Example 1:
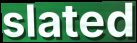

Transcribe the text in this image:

slated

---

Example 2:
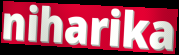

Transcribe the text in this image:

niharika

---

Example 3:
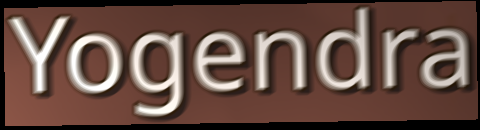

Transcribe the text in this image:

Yogendra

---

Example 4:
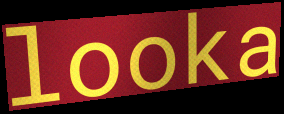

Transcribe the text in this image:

looka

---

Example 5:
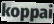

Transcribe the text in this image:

koppai